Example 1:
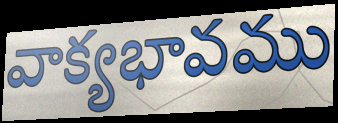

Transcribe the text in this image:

వాక్యభావము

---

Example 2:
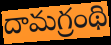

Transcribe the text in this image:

దామగ్రంథి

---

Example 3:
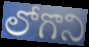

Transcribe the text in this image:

లోగొని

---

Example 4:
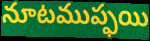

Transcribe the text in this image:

నూటముప్ఫయి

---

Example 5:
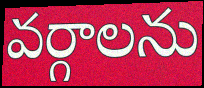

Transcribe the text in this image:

వర్గాలను